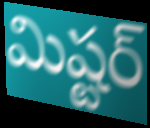
మిష్టర్